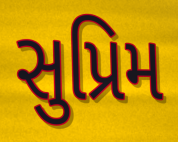
સુપ્રિમ